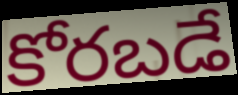
కోరబడే